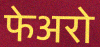
फेअरो